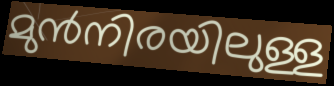
മുൻനിരയിലുള്ള